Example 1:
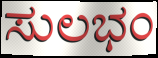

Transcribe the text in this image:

ಸುಲಭಂ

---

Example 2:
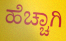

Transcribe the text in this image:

ಹೆಚ್ಚಾಗಿ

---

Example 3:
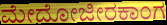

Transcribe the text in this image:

ಮೇದೋಜೀರಕಾಂಗ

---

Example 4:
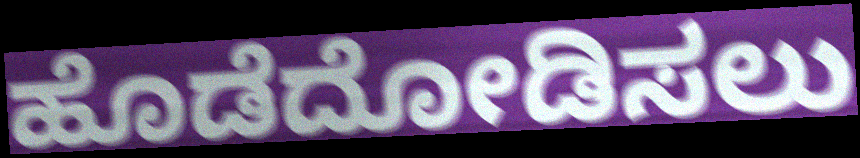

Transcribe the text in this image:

ಹೊಡೆದೋಡಿಸಲು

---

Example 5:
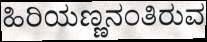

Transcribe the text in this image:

ಹಿರಿಯಣ್ಣನಂತಿರುವ